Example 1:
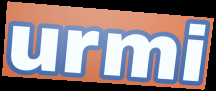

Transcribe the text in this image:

urmi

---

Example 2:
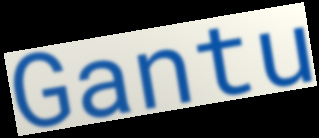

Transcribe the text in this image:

Gantu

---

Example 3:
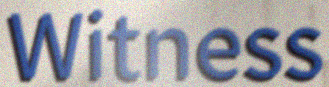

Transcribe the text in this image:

Witness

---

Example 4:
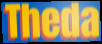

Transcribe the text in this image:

Theda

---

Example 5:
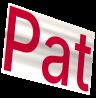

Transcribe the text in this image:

Pat